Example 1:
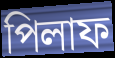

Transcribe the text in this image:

পিলাফ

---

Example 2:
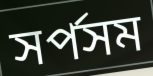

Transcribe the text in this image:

সর্পসম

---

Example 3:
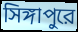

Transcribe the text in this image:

সিঙ্গাপুরে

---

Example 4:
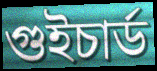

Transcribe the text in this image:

গুইচার্ড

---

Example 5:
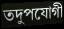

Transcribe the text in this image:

তদুপযোগী